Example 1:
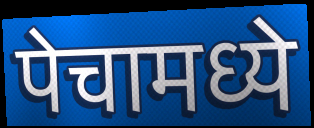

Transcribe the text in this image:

पेचामध्ये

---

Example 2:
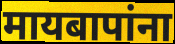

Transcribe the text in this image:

मायबापांना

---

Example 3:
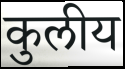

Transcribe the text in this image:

कुलीय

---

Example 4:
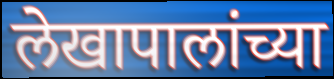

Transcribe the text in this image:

लेखापालांच्या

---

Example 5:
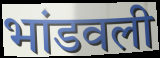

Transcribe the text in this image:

भांडवली